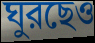
ঘুরছেও